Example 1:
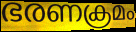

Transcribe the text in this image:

ഭരണക്രമം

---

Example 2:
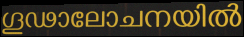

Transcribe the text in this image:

ഗൂഢാലോചനയിൽ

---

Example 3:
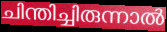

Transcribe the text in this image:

ചിന്തിച്ചിരുന്നാൽ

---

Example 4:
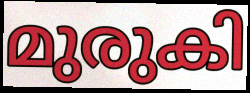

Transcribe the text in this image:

മുരുകി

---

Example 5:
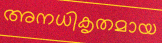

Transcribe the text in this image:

അനധികൃതമായ